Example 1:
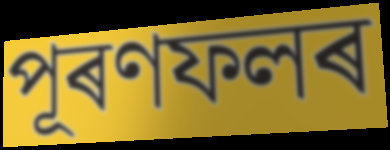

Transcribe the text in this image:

পূৰণফলৰ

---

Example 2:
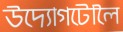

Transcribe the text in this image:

উদ্যোগটোলৈ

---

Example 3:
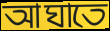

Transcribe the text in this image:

আঘাতে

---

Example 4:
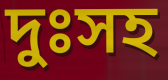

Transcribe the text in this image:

দুঃসহ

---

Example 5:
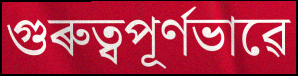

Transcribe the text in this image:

গুৰুত্বপূৰ্ণভাৱে